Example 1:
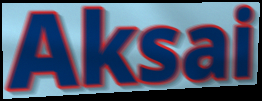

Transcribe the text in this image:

Aksai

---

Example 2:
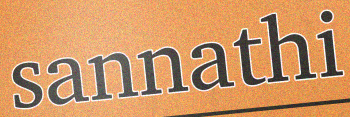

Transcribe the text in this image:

sannathi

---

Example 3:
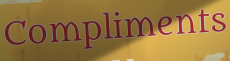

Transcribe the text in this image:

Compliments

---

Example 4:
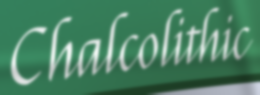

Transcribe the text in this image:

Chalcolithic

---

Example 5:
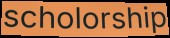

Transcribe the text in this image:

scholorship